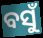
ବସୁଁ